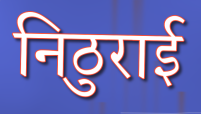
निठुराई